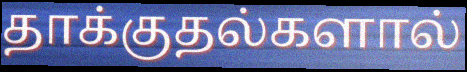
தாக்குதல்களால்